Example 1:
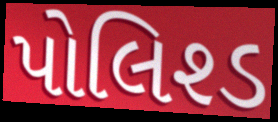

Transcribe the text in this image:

પોલિશ્ડ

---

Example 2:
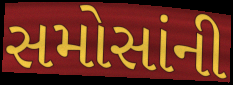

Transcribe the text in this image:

સમોસાંની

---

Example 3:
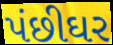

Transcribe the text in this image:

પંછીઘર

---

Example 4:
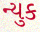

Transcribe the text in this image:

ન્યુક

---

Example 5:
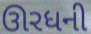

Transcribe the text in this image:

ઊરધની